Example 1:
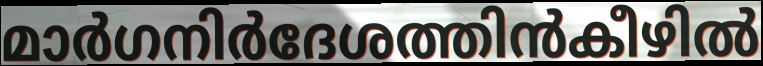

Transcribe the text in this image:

മാർഗനിർദേശത്തിൻകീഴിൽ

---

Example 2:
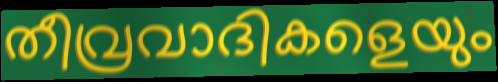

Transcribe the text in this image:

തീവ്രവാദികളെയും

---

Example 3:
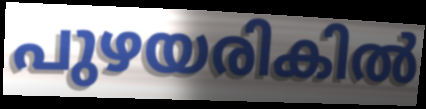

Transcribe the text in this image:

പുഴയരികിൽ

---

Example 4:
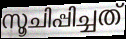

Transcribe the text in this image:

സൂചിപ്പിച്ചത്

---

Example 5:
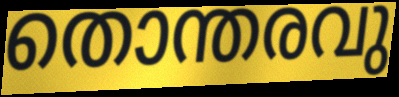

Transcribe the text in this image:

തൊന്തരവു